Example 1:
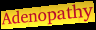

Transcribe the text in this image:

Adenopathy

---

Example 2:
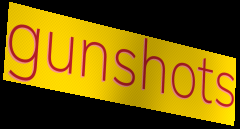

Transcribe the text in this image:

gunshots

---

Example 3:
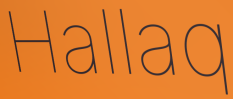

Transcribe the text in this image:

Hallaq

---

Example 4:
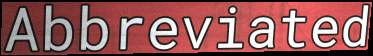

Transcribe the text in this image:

Abbreviated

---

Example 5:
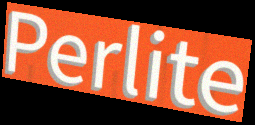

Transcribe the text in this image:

Perlite